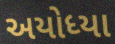
અયોધ્યા